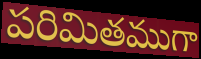
పరిమితముగా